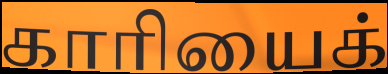
காரியைக்